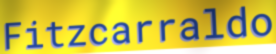
Fitzcarraldo